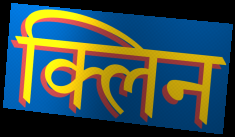
क्लिन